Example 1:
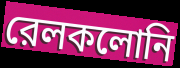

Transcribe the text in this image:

রেলকলোনি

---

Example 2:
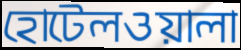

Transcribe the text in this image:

হোটেলওয়ালা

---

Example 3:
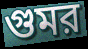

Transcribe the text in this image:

গুমর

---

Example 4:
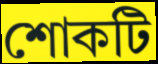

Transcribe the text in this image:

শোকটি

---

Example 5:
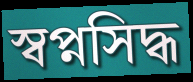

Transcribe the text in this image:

স্বপ্নসিদ্ধ